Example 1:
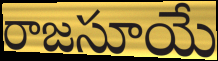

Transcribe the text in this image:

రాజసూయే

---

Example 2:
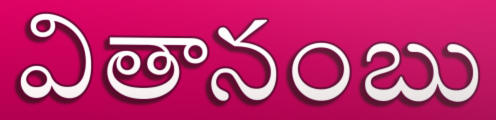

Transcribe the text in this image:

వితానంబు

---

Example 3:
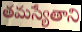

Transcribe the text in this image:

తమస్యేతాని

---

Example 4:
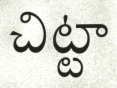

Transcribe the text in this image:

చిట్టా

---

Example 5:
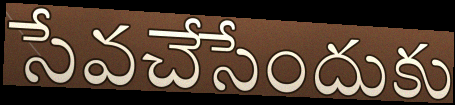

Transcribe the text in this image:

సేవచేసేందుకు